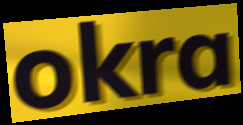
okra